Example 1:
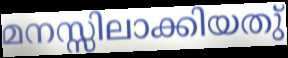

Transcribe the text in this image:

മനസ്സിലാക്കിയതു്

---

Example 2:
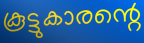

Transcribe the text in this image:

കൂട്ടുകാരന്റെ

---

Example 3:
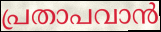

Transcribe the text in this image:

പ്രതാപവാൻ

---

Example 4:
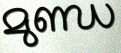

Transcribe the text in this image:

മുണ്ഡ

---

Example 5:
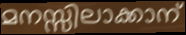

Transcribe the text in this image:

മനസ്സിലാക്കാന്